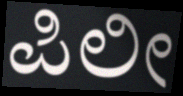
ಪಿಲೀ